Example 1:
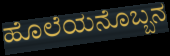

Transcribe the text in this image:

ಹೊಲೆಯನೊಬ್ಬನ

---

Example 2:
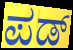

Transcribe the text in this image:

ಪಡ್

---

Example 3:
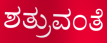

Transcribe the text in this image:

ಶತ್ರುವಂತೆ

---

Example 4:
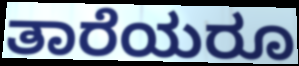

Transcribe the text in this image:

ತಾರೆಯರೂ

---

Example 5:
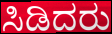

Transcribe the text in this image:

ಸಿಡಿದರು